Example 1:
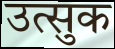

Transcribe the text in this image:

उत्सुक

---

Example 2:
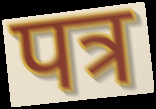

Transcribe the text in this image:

पत्र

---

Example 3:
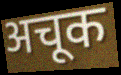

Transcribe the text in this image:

अचूक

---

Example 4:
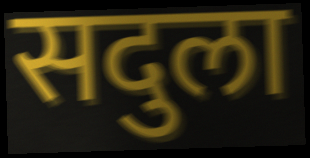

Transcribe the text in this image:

सदुला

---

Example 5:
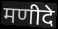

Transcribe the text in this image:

मणीदे